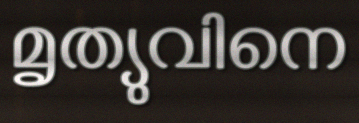
മൃത്യുവിനെ